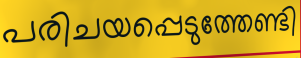
പരിചയപ്പെടുത്തേണ്ടി